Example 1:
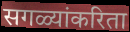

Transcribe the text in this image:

सगळ्यांकरिता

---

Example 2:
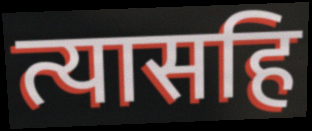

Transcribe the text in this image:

त्यासहि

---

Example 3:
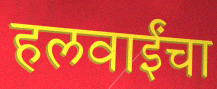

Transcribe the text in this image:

हलवाईंचा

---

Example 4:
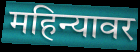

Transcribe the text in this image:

महिन्यावर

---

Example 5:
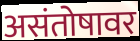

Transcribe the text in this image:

असंतोषावर